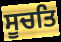
ਸੂਚਤਿ